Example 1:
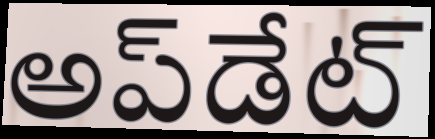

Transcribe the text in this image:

అప్‌డేట్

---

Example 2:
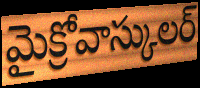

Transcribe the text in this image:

మైక్రోవాస్కులర్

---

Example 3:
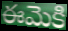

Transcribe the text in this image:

ఈమెకి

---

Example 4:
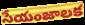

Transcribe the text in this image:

సేయంజాలక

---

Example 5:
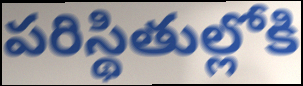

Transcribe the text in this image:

పరిస్థితుల్లోకి